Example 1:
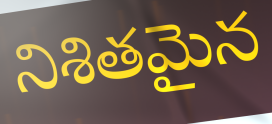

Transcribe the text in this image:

నిశితమైన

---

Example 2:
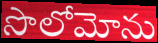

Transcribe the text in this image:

సొలోమోను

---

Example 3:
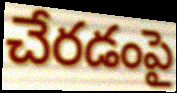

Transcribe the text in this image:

చేరడంపై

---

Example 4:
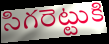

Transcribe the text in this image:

సిగరెట్టుకి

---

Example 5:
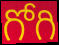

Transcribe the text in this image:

గోగి